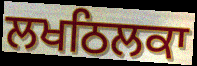
ਲਖਠਿਲਕਾ